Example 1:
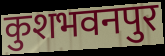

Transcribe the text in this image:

कुशभवनपुर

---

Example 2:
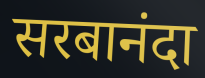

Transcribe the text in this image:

सरबानंदा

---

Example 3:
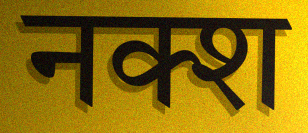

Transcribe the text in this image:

नक्श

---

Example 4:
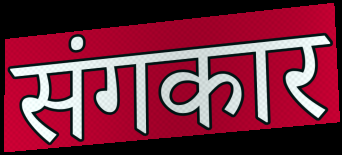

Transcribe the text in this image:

संगकार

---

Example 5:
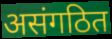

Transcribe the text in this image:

असंगठित